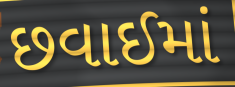
છવાઈમાં